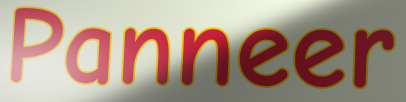
Panneer